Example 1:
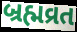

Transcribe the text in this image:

બ્રહ્મવ્રત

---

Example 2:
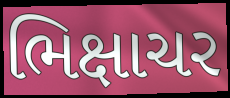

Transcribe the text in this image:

ભિક્ષાચર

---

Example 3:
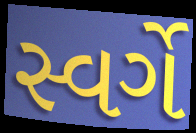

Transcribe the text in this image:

સ્વર્ગે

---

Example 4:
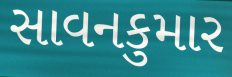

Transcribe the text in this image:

સાવનકુમાર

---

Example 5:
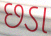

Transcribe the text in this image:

છડા